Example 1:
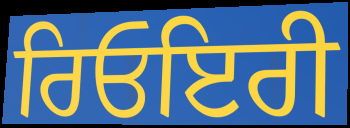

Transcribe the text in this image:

ਰਿਓਇਰੀ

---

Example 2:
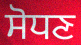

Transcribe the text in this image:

ਸੋਧਣ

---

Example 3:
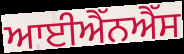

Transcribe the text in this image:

ਆਈਐੱਨਐੱਸ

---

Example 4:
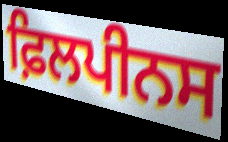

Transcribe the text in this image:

ਫ਼ਿਲਪੀਨਸ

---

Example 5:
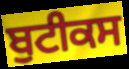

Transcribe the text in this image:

ਬੁਟੀਕਸ